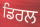
ਡਿਰਲ